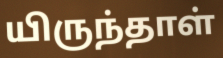
யிருந்தாள்